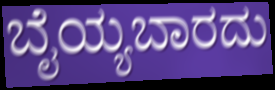
ಬೈಯ್ಯಬಾರದು